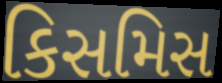
કિસમિસ